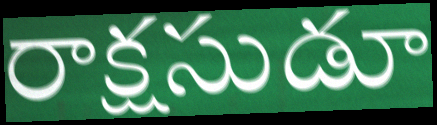
రాక్షసుడూ